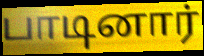
பாடினார்